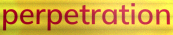
perpetration